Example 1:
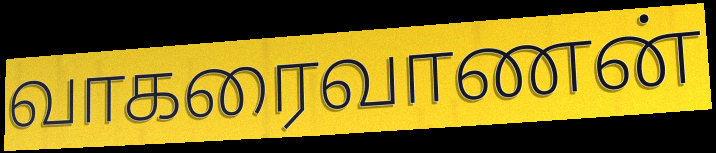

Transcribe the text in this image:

வாகரைவாணன்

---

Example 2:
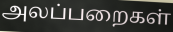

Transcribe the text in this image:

அலப்பறைகள்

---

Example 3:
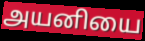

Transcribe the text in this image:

அயனியை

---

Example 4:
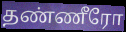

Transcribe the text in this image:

தண்ணீரோ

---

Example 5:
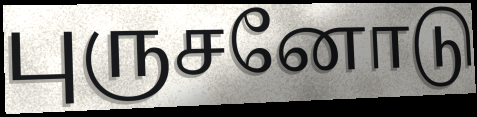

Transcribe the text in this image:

புருசனோடு